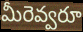
మీరెవ్వరూ